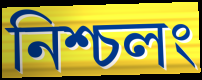
নিশ্চলং